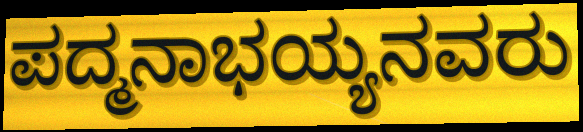
ಪದ್ಮನಾಭಯ್ಯನವರು